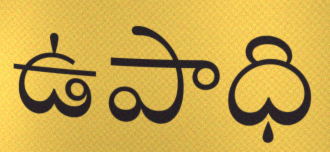
ఉపాధి